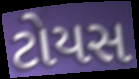
ટોયસ